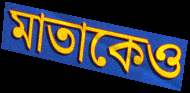
মাতাকেও